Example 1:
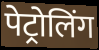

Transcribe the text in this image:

पेट्रोलिंग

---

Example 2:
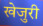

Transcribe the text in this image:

खेजुरी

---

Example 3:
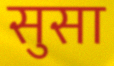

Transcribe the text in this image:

सुसा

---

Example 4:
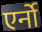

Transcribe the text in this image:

एर्नो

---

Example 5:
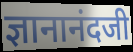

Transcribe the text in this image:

ज्ञानानंदजी